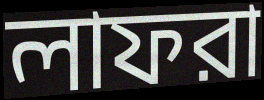
লাফরা